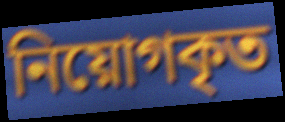
নিয়োগকৃত